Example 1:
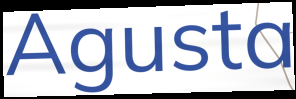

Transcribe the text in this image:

Agusta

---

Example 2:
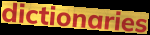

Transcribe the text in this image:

dictionaries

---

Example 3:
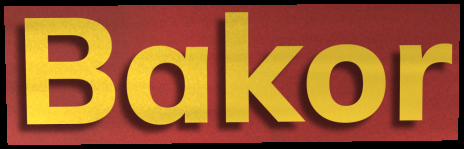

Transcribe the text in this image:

Bakor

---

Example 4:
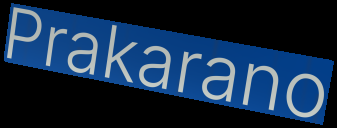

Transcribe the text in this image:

Prakarano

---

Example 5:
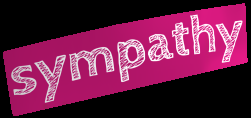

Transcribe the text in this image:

sympathy